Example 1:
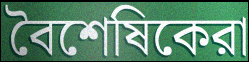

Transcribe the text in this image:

বৈশেষিকেরা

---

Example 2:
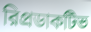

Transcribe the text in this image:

রিপ্রডাকটিভ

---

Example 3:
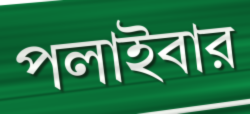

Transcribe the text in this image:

পলাইবার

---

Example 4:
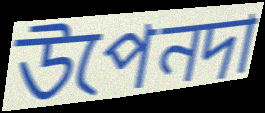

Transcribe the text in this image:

উপেনদা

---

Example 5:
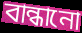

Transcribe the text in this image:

বান্ধানো